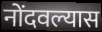
नोंदवल्यास